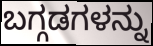
ಬಗ್ಗಡಗಳನ್ನು